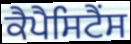
ਕੈਪੈਸਿਟੈਂਸ